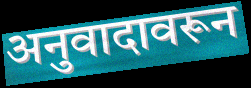
अनुवादावरून